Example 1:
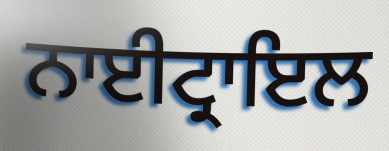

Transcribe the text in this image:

ਨਾਈਟ੍ਰਾਇਲ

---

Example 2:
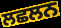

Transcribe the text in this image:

ਲਛਲਨ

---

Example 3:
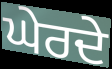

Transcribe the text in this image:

ਘੇਰਦੇ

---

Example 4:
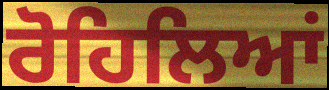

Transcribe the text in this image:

ਰੋਹਿਲਿਆਂ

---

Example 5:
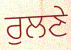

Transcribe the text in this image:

ਰੁਲਣੇ